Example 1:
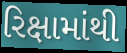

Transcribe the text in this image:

રિક્ષામાંથી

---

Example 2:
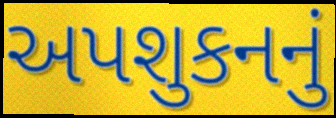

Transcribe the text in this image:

અપશુકનનું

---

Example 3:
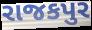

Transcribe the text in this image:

રાજકપુર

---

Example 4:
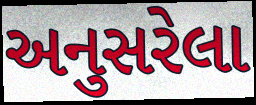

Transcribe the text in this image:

અનુસરેલા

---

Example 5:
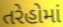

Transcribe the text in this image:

તરેહોમાં